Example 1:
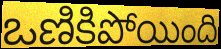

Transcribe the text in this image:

ఒణికిపోయింది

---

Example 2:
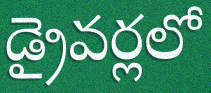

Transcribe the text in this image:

డ్రైవర్లలో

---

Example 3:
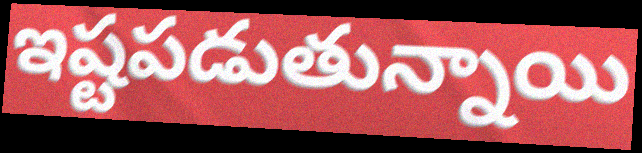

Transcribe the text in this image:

ఇష్టపడుతున్నాయి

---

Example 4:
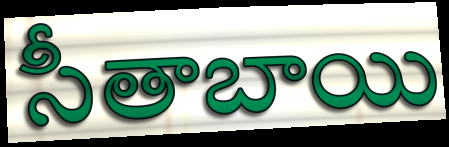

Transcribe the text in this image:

సీతాబాయి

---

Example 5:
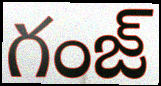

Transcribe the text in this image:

గంజ్